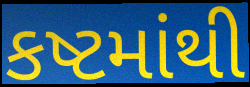
કષ્ટમાંથી